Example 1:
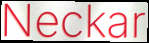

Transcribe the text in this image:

Neckar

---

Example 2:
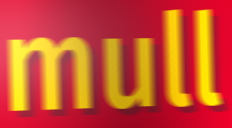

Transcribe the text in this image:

mull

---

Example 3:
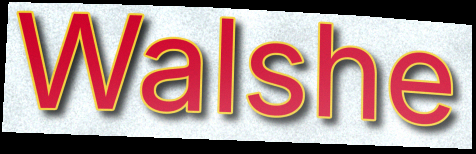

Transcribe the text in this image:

Walshe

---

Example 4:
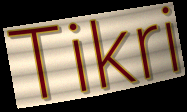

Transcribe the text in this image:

Tikri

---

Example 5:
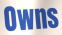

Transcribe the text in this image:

Owns